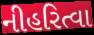
નીહરિત્વા